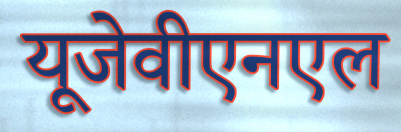
यूजेवीएनएल